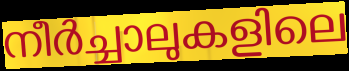
നീർച്ചാലുകളിലെ